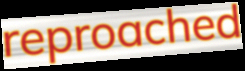
reproached